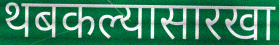
थबकल्यासारखा